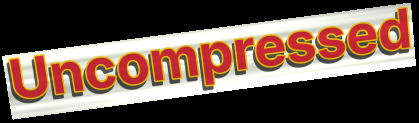
Uncompressed